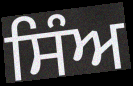
ਸਿੰਅ